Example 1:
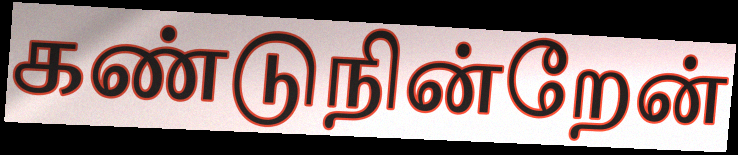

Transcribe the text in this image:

கண்டுநின்றேன்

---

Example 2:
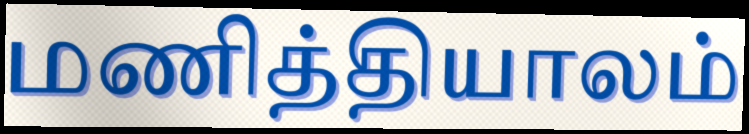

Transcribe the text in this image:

மணித்தியாலம்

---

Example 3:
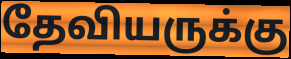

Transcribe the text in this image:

தேவியருக்கு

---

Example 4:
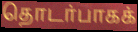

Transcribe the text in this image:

தொடர்பாகக்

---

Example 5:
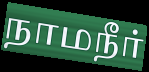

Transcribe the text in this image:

நாமநீர்